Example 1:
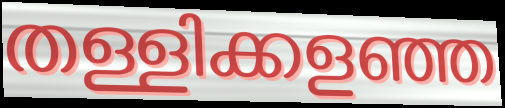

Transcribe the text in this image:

തള്ളിക്കളഞ്ഞ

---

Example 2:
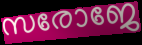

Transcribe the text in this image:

സരോജേ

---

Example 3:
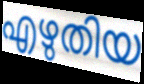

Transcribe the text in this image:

എഴുതിയ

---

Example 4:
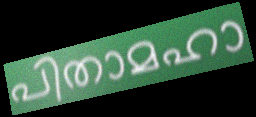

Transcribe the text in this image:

പിതാമഹാ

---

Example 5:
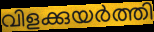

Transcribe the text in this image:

വിളക്കുയർത്തി